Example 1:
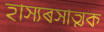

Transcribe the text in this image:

হাস্যৰসাত্মক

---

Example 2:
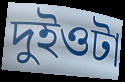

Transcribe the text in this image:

দুইওটা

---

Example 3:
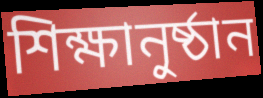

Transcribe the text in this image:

শিক্ষানুষ্ঠান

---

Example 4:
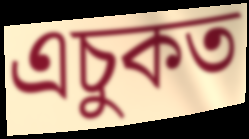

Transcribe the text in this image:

এচুকত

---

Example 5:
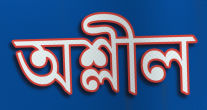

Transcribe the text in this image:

অশ্লীল